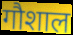
गौशाल